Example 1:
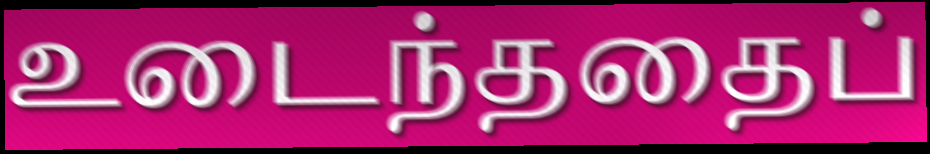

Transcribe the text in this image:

உடைந்ததைப்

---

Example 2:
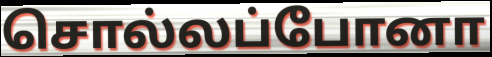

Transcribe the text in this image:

சொல்லப்போனா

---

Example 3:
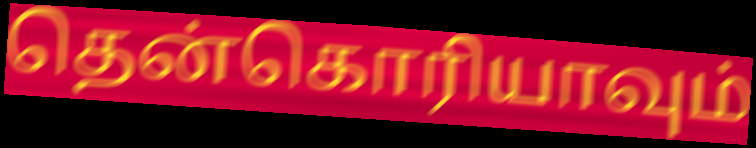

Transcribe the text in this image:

தென்கொரியாவும்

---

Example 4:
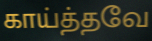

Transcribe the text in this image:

காய்த்தவே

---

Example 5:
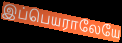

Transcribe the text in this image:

இப்பெயராலேயே